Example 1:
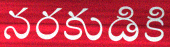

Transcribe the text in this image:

నరకుడికి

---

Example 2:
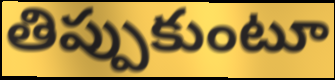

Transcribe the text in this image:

తిప్పుకుంటూ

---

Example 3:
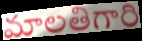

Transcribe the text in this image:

మాలతిగారి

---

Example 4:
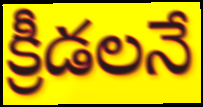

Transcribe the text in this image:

క్రీడలనే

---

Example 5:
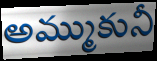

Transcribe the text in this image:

అమ్ముకునీ